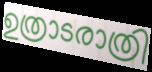
ഉത്രാടരാത്രി